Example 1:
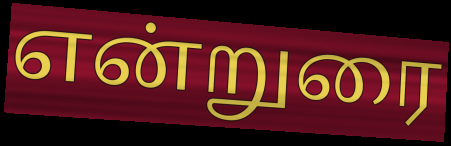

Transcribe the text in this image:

என்றுரை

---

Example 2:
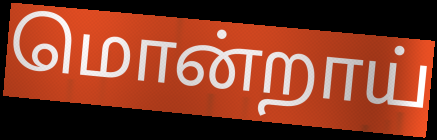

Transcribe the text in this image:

மொன்றாய்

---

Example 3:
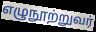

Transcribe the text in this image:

எழுநூற்றுவர்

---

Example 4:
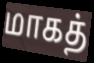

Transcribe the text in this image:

மாகத்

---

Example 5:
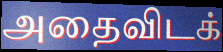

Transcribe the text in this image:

அதைவிடக்